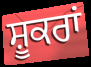
ਸ਼ੂਕਰਾਂ